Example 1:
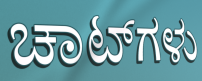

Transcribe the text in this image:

ಚಾಟ್‌ಗಳು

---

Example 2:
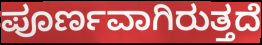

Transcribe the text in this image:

ಪೂರ್ಣವಾಗಿರುತ್ತದೆ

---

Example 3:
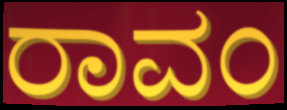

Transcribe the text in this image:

ರಾವಂ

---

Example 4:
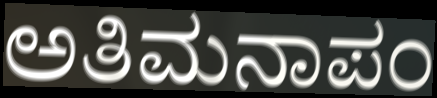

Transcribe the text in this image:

ಅತಿಮನಾಪಂ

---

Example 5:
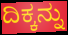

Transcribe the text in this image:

ದಿಕ್ಕನ್ನು